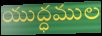
యుద్ధముల